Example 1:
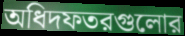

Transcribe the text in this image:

অধিদফতরগুলোর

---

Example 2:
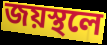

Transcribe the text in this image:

জয়স্থলে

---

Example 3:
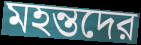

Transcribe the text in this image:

মহন্তদের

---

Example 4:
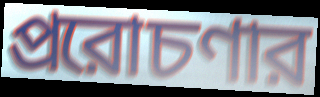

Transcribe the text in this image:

প্ররোচণার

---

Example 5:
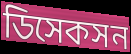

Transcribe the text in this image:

ডিসেকসন